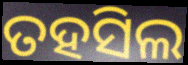
ତହସିଲ